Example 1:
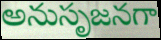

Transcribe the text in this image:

అనుసృజనగా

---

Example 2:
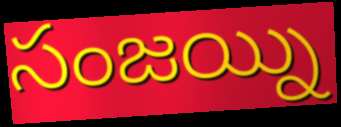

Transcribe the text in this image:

సంజయ్ని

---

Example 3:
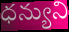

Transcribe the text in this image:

ధన్యుని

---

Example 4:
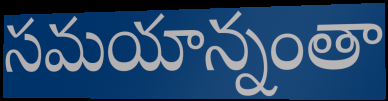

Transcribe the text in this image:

సమయాన్నంతా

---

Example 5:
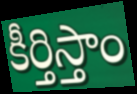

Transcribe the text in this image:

కీర్తిస్తాం